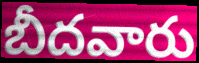
బీదవారు